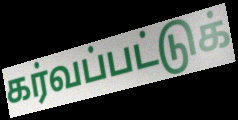
கர்வப்பட்டுக்